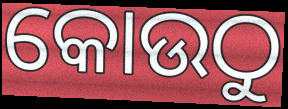
କୋଉଠୁ